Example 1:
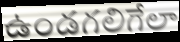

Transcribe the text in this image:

ఉండగలిగేలా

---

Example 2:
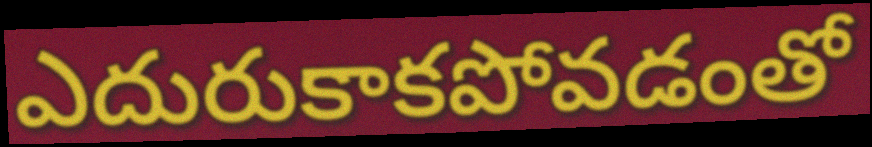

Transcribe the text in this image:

ఎదురుకాకపోవడంతో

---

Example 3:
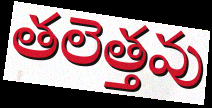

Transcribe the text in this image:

తలెత్తవు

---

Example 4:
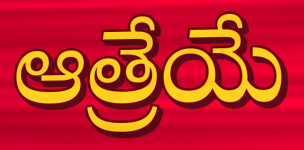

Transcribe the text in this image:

ఆత్రేయే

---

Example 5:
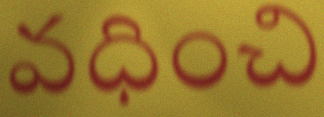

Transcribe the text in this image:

వధించి